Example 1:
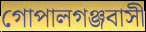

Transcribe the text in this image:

গোপালগঞ্জবাসী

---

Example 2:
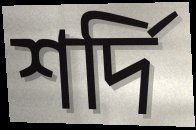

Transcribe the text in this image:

শর্দি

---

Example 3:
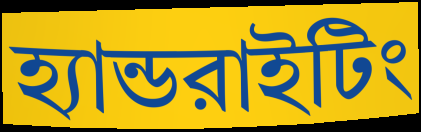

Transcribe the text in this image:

হ্যান্ডরাইটিং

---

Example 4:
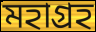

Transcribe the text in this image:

মহাগ্রহ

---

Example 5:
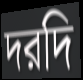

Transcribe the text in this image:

দরদি